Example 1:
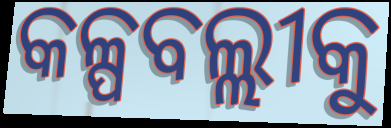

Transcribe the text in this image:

କଳ୍ପବଲ୍ଲୀକୁ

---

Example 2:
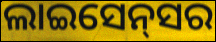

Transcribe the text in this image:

ଲାଇସେନ୍‌ସର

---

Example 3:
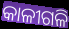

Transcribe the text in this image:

କାଳୀଗଳି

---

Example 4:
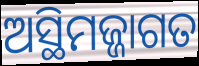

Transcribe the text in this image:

ଅସ୍ଥିମଜ୍ଜାଗତ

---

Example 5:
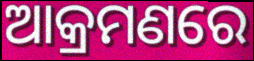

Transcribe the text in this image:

ଆକ୍ରମଣରେ